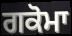
ਗਕੋਮਾ